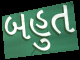
બહુત